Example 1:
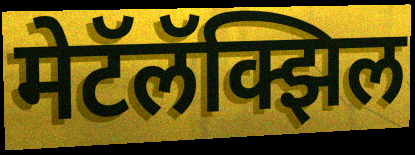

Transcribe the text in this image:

मेटॅलॅक्झिल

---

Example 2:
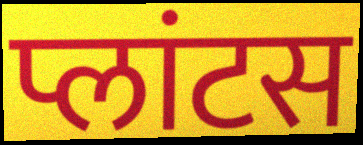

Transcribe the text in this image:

प्लांटस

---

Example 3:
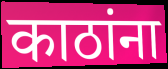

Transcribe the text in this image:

काठांना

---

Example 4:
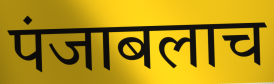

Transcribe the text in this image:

पंजाबलाच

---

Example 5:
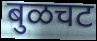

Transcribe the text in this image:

बुळचट